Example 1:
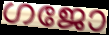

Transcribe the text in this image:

ഗജോ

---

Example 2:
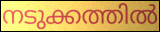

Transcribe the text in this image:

നടുക്കത്തിൽ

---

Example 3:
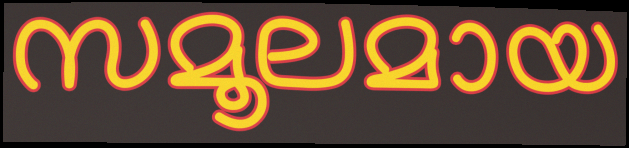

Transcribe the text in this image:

സമൂലമായ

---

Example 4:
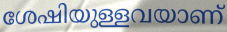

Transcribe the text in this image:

ശേഷിയുള്ളവയാണ്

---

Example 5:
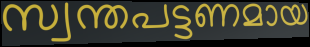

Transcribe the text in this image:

സ്വന്തപട്ടണമായ